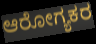
ಆರೋಗ್ಯಕರ